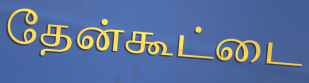
தேன்கூட்டை